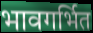
भावगर्भित